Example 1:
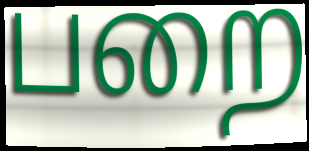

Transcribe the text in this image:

பறை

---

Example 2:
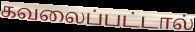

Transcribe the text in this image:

கவலைப்பட்டால்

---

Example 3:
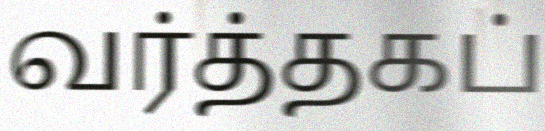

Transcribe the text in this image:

வர்த்தகப்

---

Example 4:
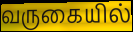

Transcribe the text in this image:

வருகையில்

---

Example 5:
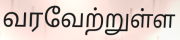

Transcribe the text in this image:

வரவேற்றுள்ள